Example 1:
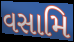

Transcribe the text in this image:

વસામિ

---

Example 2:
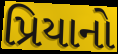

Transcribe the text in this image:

પ્રિયાનો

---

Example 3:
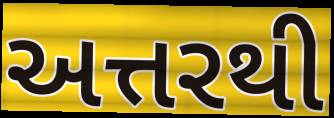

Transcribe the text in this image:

અત્તરથી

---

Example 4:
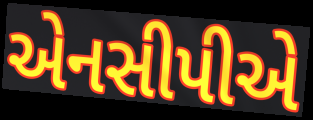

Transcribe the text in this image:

એનસીપીએ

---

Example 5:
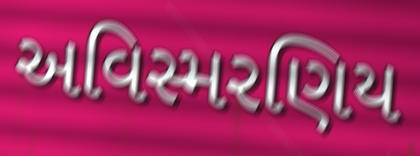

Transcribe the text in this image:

અવિસ્મરણિય